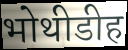
भोथीडीह